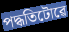
পদ্ধতিটোৱে